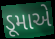
ડૂમાએ